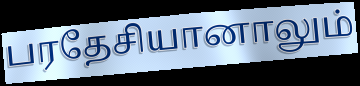
பரதேசியானாலும்